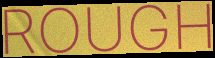
ROUGH